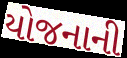
યોજનાની